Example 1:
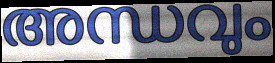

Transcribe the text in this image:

അന്ധവും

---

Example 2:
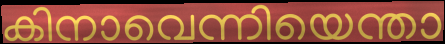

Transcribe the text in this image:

കിനാവെന്നിയെന്താ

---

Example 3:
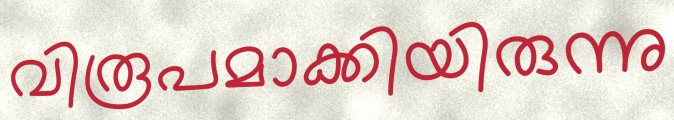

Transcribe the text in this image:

വിരൂപമാക്കിയിരുന്നു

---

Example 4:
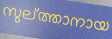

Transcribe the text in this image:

സുല്ത്താനായ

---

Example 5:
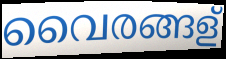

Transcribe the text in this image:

വൈരങ്ങള്